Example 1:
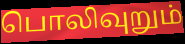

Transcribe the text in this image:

பொலிவுறும்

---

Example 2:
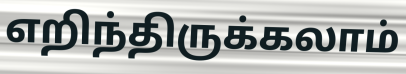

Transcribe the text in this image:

எறிந்திருக்கலாம்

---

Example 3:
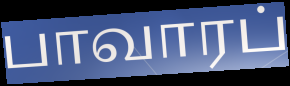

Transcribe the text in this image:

பாவாரப்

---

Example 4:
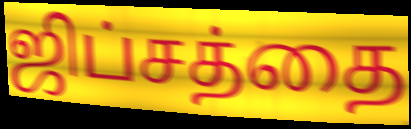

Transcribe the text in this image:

ஜிப்சத்தை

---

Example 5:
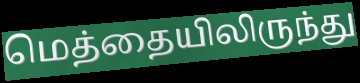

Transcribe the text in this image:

மெத்தையிலிருந்து